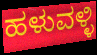
ಹಳುವಳ್ಳಿ